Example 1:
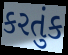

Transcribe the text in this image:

કરતુંક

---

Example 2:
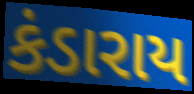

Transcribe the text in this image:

કંડારાય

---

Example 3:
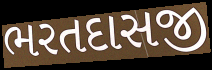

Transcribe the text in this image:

ભરતદાસજી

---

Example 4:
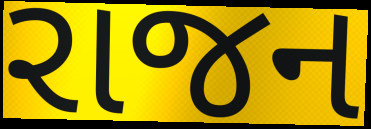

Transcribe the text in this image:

રાજન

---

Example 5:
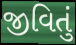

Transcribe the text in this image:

જીવિતું